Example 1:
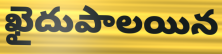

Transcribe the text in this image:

ఖైదుపాలయిన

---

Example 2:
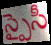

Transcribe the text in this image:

స్పైసీ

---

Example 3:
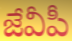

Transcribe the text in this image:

జేవీపీ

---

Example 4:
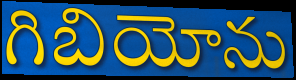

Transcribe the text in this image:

గిబియోను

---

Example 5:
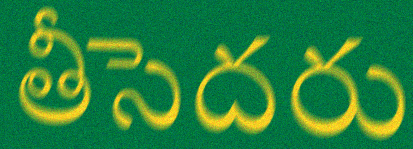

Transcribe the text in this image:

తీసెదరు